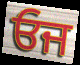
ਓਜ